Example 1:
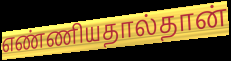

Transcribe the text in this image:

எண்ணியதால்தான்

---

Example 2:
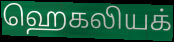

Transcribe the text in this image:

ஹெகலியக்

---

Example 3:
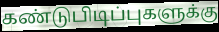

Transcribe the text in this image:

கண்டுபிடிப்புகளுக்கு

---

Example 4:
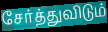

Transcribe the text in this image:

சேர்த்துவிடும்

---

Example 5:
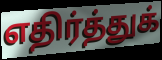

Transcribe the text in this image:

எதிர்த்துக்